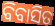
ବିବାସିତ